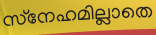
സ്‌നേഹമില്ലാതെ